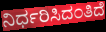
ನಿರ್ಧರಿಸಿದಂತಿದೆ